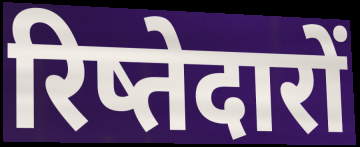
रिष्तेदारों